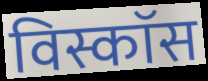
विस्कॉस